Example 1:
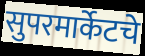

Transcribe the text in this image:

सुपरमार्केटचे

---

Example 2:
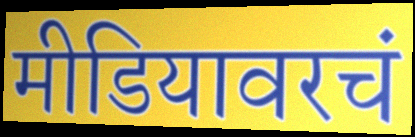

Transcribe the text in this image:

मीडियावरचं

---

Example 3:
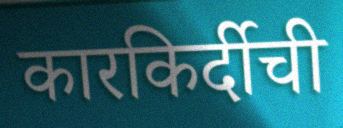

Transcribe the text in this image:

कारकिर्दीची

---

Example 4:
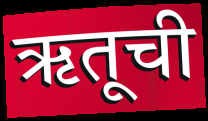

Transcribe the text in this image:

ॠतूची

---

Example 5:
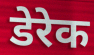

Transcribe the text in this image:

डेरेक